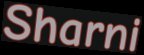
Sharni